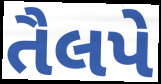
તૈલપે